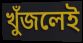
খুঁজলেই